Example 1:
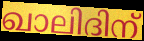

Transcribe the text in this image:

ഖാലിദിന്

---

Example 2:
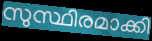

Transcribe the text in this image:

സുസ്ഥിരമാക്കി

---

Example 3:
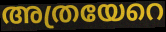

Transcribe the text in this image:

അത്രയേറെ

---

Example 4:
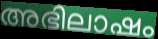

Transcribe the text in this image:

അഭിലാഷം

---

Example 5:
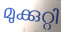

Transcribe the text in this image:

മുക്കുറ്റി